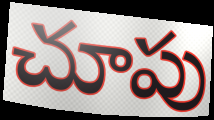
చూపు